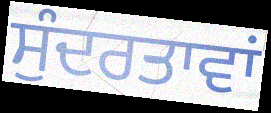
ਸੁੰਦਰਤਾਵਾਂ